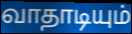
வாதாடியும்